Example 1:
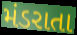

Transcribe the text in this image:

મંડરાતા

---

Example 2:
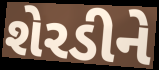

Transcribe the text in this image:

શેરડીને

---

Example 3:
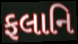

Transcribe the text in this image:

ફલાનિ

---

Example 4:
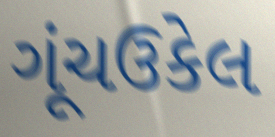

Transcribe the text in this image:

ગૂંચઉકેલ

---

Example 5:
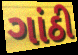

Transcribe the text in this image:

ગાંઠી